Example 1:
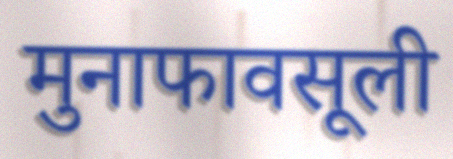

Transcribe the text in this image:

मुनाफावसूली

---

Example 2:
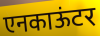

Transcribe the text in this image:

एनकाऊंटर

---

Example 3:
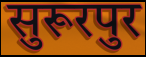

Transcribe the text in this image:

सुरूरपुर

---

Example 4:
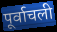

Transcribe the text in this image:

पूर्वाचली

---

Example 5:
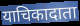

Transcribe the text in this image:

याचिकादाता